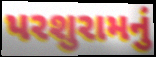
પરશુરામનું